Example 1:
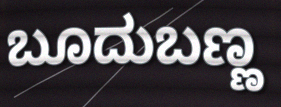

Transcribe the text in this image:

ಬೂದುಬಣ್ಣ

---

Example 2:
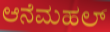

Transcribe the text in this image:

ಆನೆಮಹಲ್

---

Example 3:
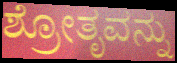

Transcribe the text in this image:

ಶ್ರೋತೃವನ್ನು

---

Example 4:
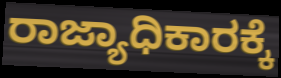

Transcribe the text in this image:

ರಾಜ್ಯಾಧಿಕಾರಕ್ಕೆ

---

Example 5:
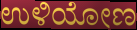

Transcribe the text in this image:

ಉಳಿಯೋಣ